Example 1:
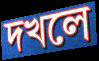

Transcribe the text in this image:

দখলে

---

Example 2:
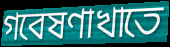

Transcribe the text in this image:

গবেষণাখাতে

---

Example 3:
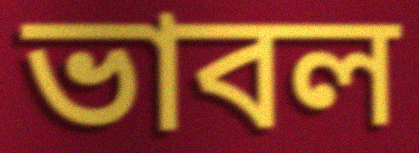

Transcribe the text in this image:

ভাবল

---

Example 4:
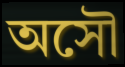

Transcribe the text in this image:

অসৌ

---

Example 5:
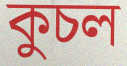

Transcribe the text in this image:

কুচল